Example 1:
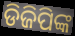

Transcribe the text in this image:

ଡିଜିପିଙ୍କ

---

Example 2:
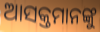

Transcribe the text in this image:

ଆସକ୍ତମାନଙ୍କୁ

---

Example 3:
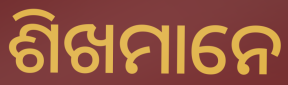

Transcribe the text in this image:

ଶିଖମାନେ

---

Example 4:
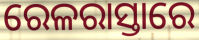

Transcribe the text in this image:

ରେଳରାସ୍ତାରେ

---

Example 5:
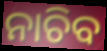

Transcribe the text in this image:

ନାଚିବ